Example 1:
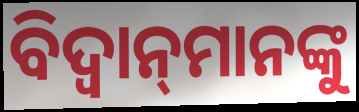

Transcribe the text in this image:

ବିଦ୍ଵାନ୍‌ମାନଙ୍କୁ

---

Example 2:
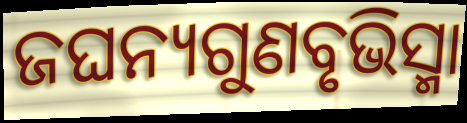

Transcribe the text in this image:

ଜଘନ୍ୟଗୁଣବୃଭିସ୍ମା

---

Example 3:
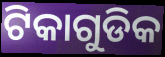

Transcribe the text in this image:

ଟିକାଗୁଡିକ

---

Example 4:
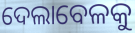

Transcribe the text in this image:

ଦେଲାବେଳକୁ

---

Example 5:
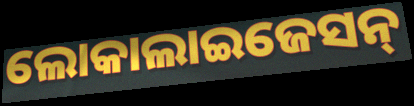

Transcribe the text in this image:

ଲୋକାଲାଇଜେସନ୍